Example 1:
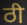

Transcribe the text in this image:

ठी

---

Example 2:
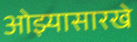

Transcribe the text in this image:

ओझ्यासारखे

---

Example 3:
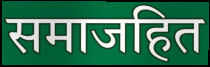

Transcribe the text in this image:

समाजहित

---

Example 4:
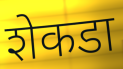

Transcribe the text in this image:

शेकडा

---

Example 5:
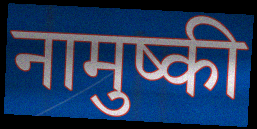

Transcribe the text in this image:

नामुष्की